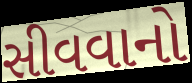
સીવવાનો